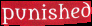
punished